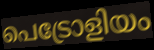
പെട്രോളിയം